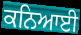
ਕਨਿਆਈ